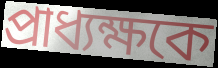
প্রাধ্যক্ষকে